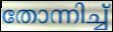
തോന്നിച്ച്